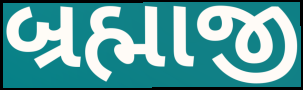
બ્રહ્માજી